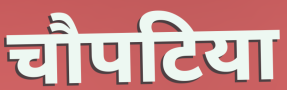
चौपटिया